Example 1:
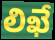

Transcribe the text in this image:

లిఖే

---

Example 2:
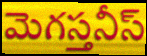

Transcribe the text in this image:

మెగస్తనీస్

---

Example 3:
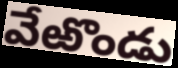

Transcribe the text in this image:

వేఱొండు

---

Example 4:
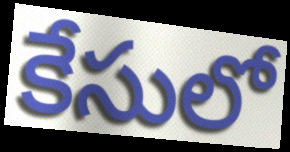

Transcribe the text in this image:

కేసులో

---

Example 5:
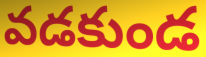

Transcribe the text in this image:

వడకుండ